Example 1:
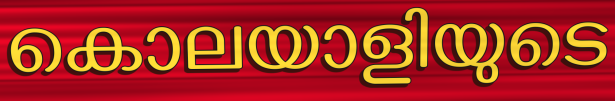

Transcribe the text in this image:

കൊലയാളിയുടെ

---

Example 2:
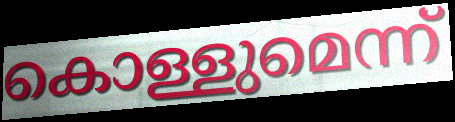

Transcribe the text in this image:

കൊള്ളുമെന്ന്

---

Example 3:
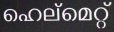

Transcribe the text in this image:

ഹെല്മെറ്റ്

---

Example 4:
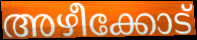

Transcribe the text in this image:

അഴീക്കോട്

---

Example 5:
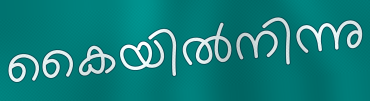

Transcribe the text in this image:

കൈയിൽനിന്നു